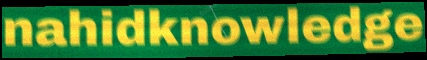
nahidknowledge